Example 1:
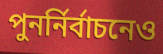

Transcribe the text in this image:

পুনর্নির্বাচনেও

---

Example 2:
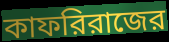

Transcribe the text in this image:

কাফরিরাজের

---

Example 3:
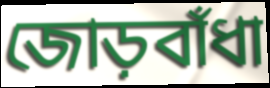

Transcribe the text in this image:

জোড়বাঁধা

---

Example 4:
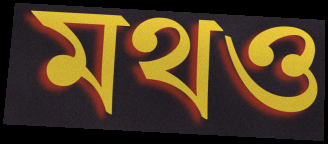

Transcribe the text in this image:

মথও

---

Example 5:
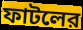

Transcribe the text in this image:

ফাটলের